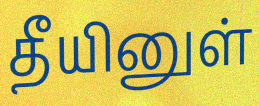
தீயினுள்